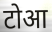
टोआ